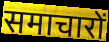
समाचारों